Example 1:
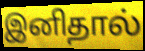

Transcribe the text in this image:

இனிதால்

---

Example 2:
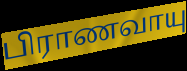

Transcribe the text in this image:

பிராணவாயு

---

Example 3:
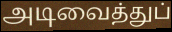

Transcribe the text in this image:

அடிவைத்துப்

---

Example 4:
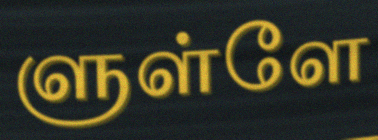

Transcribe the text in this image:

ளுள்ளே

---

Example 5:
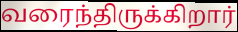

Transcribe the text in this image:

வரைந்திருக்கிறார்